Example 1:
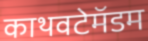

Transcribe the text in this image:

काथवटेमॅडम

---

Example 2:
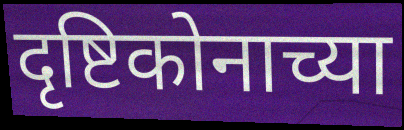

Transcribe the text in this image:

दृष्टिकोनाच्या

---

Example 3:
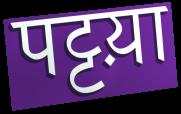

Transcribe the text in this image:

पट्टय़ा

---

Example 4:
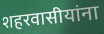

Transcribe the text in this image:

शहरवासीयांना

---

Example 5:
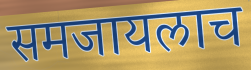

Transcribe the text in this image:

समजायलाच